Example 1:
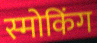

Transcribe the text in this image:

स्‍मोकिंग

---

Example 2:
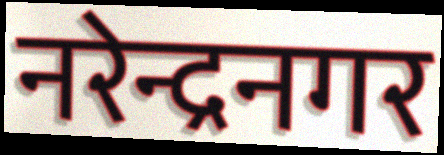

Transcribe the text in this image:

नरेन्द्रनगर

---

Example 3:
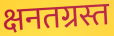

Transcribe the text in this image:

क्षनतग्रस्त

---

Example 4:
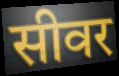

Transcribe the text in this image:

सीवर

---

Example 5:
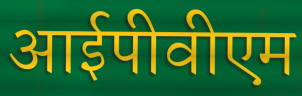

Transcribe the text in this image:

आईपीवीएम